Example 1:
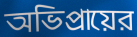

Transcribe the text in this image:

অভিপ্রায়ের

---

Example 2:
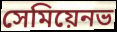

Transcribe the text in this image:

সেমিয়েনভ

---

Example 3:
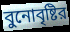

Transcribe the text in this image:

বুনোবৃষ্টির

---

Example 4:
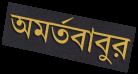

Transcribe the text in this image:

অমর্তবাবুর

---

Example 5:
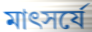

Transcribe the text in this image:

মাৎসর্যে